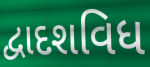
દ્વાદશવિધ